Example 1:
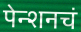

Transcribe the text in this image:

पेन्शनचं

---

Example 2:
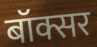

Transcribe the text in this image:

बॉक्सर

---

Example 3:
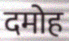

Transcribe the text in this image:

दमोह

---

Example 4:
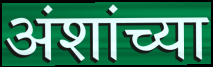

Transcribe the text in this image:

अंशांच्या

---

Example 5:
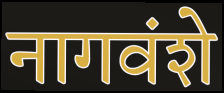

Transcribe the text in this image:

नागवंशे